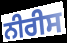
ਨੀਰੀਸ